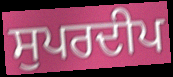
ਸੁਪਰਦੀਪ